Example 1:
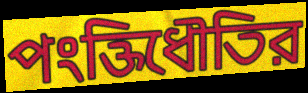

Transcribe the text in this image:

পংক্তিধৌতির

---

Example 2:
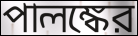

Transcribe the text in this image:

পালঙ্কের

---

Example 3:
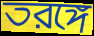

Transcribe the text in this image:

তরঙ্গে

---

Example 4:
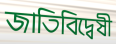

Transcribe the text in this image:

জাতিবিদ্বেষী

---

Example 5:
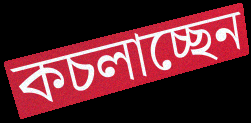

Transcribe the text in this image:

কচলাচ্ছেন